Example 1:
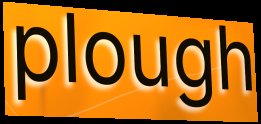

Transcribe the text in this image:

plough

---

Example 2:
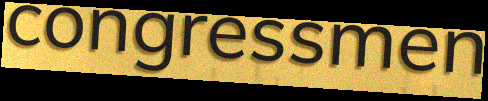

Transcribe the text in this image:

congressmen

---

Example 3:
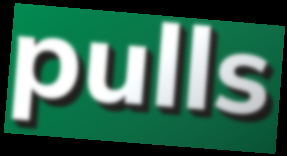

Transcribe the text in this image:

pulls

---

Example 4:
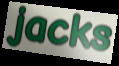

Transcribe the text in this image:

jacks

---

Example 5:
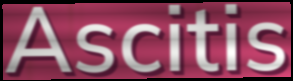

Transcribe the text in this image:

Ascitis